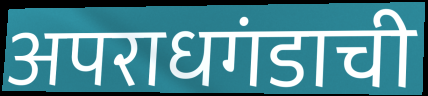
अपराधगंडाची